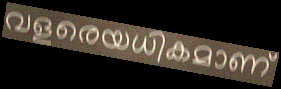
വളരെയധികമാണ്